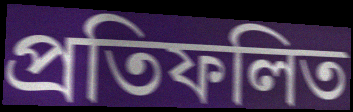
প্ৰতিফলিত